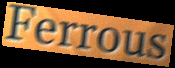
Ferrous